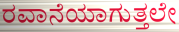
ರವಾನೆಯಾಗುತ್ತಲೇ